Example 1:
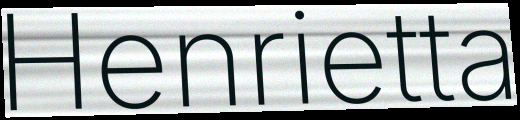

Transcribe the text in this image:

Henrietta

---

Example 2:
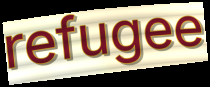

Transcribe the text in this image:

refugee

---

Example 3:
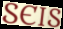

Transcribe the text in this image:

SEIS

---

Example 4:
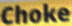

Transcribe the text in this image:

Choke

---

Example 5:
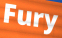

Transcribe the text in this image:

Fury